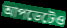
আপডেটেও